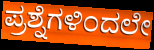
ಪ್ರಶ್ನೆಗಳಿಂದಲೇ